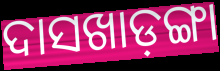
ଦାସଖାଡ଼ଙ୍ଗା